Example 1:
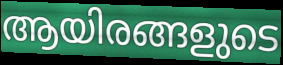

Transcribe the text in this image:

ആയിരങ്ങളുടെ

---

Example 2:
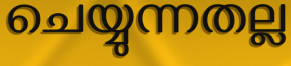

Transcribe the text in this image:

ചെയ്യുന്നതല്ല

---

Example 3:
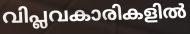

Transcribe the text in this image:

വിപ്ലവകാരികളിൽ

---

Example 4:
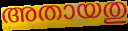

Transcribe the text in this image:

അതായതു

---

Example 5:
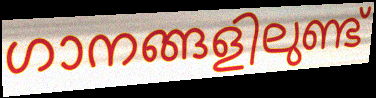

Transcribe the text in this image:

ഗാനങ്ങളിലുണ്ട്